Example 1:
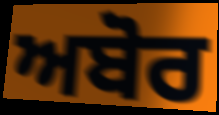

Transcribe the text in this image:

ਅਬੋਰ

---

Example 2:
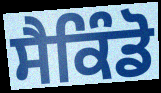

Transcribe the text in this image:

ਸੈਕਿੰਡੋ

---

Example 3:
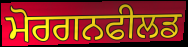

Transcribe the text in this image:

ਮੋਰਗਨਫੀਲਡ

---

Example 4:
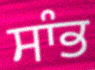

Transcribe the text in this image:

ਸਾੰਭ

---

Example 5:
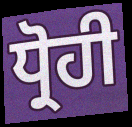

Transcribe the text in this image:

ਧ੍ਰੋਹੀ